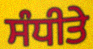
ਸੰਧੀਤੇ